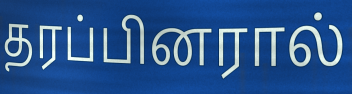
தரப்பினரால்